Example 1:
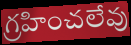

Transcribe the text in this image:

గ్రహించలేవు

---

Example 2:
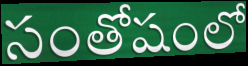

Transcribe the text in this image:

సంతోషంలో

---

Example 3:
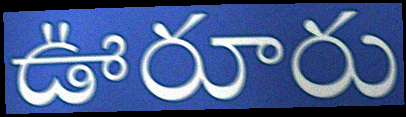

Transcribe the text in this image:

ఊరూరు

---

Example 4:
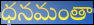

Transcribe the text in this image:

ధనమంతా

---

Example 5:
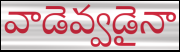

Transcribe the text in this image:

వాడెవ్వడైనా